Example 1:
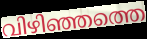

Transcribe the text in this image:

വിഴിഞ്ഞത്തെ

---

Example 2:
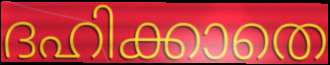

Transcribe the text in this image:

ദഹിക്കാതെ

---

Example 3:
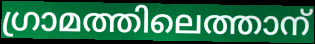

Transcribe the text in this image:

ഗ്രാമത്തിലെത്താന്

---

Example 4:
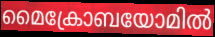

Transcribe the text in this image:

മൈക്രോബയോമിൽ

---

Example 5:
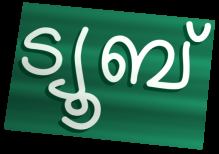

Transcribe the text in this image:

ട്യൂബ്